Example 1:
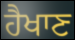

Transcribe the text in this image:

ਹੈਖਾਣ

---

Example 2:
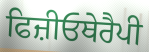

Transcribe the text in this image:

ਫਿਜ਼ੀਓਥੇਰੈਪੀ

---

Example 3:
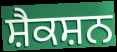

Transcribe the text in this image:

ਸ਼ੈਕਸ਼ਨ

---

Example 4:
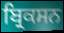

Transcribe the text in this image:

ਬ੍ਰਿਕਸਨ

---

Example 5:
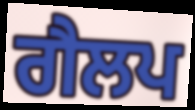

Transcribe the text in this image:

ਗੈਲਪ